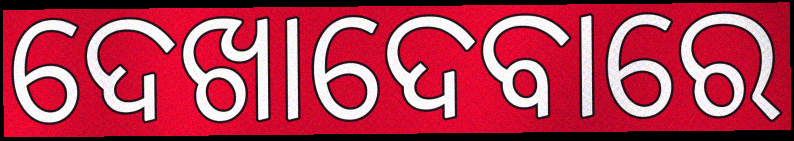
ଦେଖାଦେବାରେ